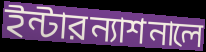
ইন্টারন্যাশনালে